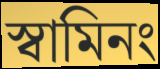
স্বামিনং